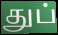
துப்